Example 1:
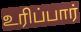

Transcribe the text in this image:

உரிப்பார்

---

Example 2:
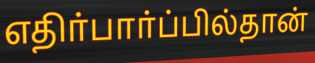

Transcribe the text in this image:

எதிர்பார்ப்பில்தான்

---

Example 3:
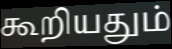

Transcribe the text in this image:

கூறியதும்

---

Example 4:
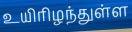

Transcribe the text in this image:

உயிரிழந்துள்ள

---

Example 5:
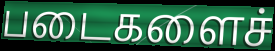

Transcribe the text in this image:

படைகளைச்